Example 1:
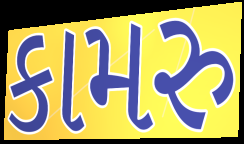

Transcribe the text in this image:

કામરુ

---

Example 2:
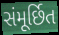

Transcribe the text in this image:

સંમૂર્છિત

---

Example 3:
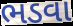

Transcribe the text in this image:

ભડવા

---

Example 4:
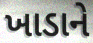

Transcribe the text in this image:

ખાડાને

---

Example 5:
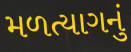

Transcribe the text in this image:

મળત્યાગનું